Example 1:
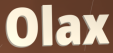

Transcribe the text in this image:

Olax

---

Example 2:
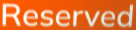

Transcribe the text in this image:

Reserved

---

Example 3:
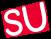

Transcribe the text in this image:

SU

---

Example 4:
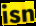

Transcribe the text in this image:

isn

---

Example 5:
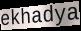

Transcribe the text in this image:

ekhadya